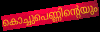
കൊച്ചുപെണ്ണിന്റെയും